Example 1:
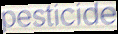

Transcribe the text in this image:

pesticide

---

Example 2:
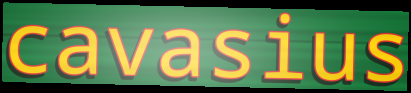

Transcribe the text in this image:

cavasius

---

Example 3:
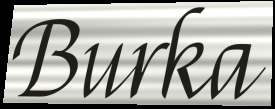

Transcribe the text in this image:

Burka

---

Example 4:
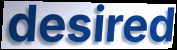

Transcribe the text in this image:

desired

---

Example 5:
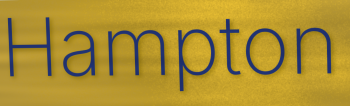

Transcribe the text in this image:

Hampton